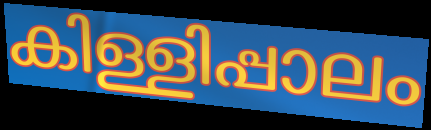
കിള്ളിപ്പാലം